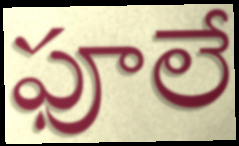
ఫూలే